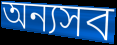
অন্যসব